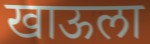
खाऊला